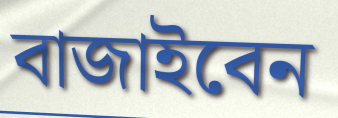
বাজাইবেন